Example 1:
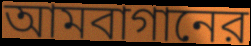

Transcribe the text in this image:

আমবাগানের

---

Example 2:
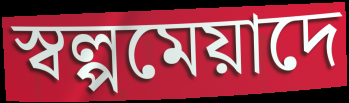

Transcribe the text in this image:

স্বল্পমেয়াদে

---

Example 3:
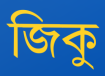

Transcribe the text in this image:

জিকু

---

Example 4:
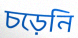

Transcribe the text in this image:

চড়েনি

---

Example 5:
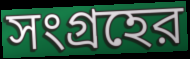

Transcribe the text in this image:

সংগ্রহের